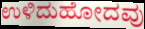
ಉಳಿದುಹೋದವು